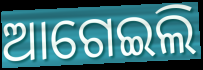
ଆଗେଇଲି